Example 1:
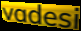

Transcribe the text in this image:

vadesi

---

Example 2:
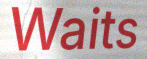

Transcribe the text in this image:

Waits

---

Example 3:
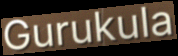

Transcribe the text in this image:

Gurukula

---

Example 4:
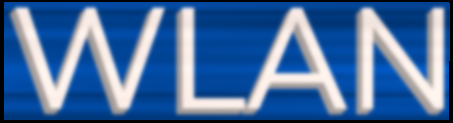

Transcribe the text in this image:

WLAN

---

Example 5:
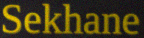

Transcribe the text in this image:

Sekhane